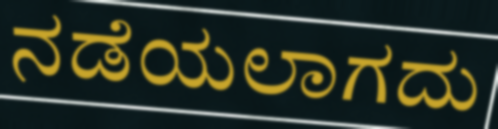
ನಡೆಯಲಾಗದು